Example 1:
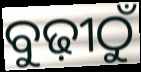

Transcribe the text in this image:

ବୁଢ଼ୀଠୁଁ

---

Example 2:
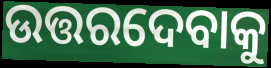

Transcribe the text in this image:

ଉତ୍ତରଦେବାକୁ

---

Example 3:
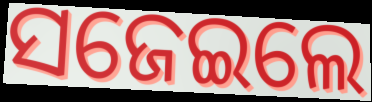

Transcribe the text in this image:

ସଜେଇଲେ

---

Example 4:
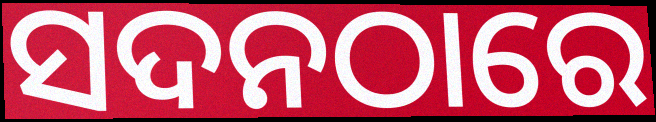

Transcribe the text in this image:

ସଦନଠାରେ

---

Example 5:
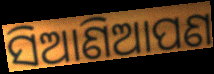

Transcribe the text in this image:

ସିଆଣିଆପଣ